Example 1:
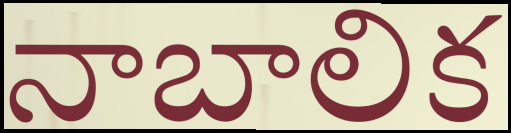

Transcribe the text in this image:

నాబాలిక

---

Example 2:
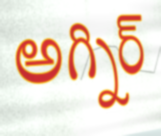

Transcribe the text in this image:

అగ్నిర్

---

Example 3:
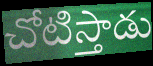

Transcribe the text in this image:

చోటిస్తాడు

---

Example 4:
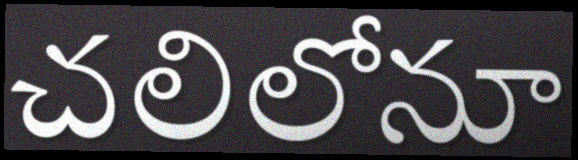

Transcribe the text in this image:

చలిలోనూ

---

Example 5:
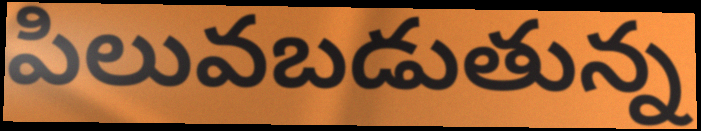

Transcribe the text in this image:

పిలువబడుతున్న